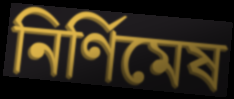
নির্ণিমেষ